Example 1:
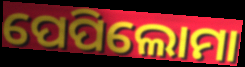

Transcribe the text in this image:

ପେପିଲୋମା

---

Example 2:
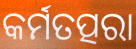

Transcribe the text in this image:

କର୍ମତତ୍ପରା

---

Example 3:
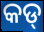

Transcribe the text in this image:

କଡ୍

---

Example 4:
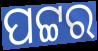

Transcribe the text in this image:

ପଟ୍ଟର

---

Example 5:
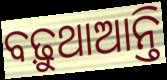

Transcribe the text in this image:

ବଢ଼ୁଥାଆନ୍ତି